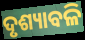
ଦୃଶ୍ୟାବଳି